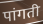
पांगती